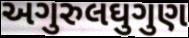
અગુરુલઘુગુણ